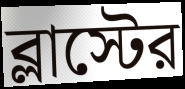
ব্লাস্টের